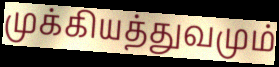
முக்கியத்துவமும்